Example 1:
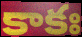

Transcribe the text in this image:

కాకః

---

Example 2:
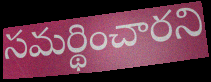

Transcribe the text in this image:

సమర్థించారని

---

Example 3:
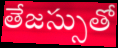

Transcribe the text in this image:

తేజస్సుతో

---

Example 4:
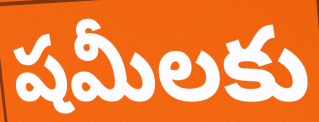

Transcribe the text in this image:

షమీలకు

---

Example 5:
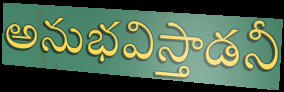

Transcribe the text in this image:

అనుభవిస్తాడనీ